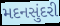
મદનસુંદરી